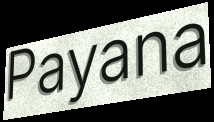
Payana